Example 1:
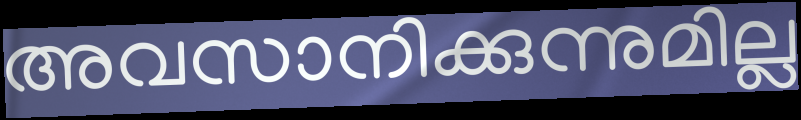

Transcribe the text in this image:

അവസാനിക്കുന്നുമില്ല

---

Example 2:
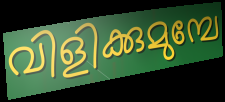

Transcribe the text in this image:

വിളിക്കുമുമ്പേ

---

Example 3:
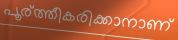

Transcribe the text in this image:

പൂര്ത്തീകരിക്കാനാണ്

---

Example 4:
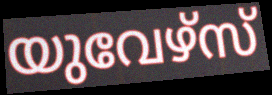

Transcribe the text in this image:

യുവേഴ്സ്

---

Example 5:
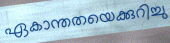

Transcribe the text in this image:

ഏകാന്തതയെക്കുറിച്ചു